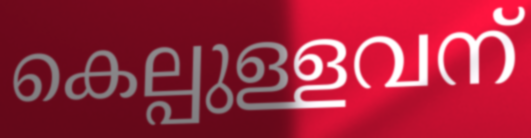
കെല്പുള്ളവന്